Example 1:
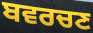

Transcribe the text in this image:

ਬਵਰਚਣ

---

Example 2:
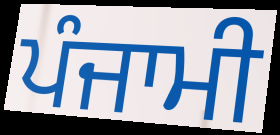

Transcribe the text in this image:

ਪੰਜਾਮੀ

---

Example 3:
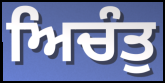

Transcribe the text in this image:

ਅਿਚੰਤੁ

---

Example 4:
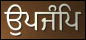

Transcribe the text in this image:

ਉਪਜੰਪਿ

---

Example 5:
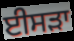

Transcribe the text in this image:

ਈਸੜਾ